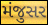
મંજુસર